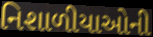
નિશાળીયાઓની